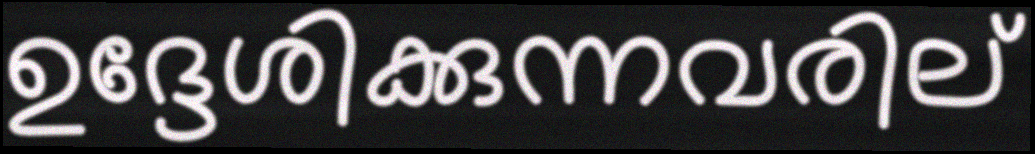
ഉദ്ദേശിക്കുന്നവരില്